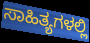
ಸಾಹಿತ್ಯಗಳಲ್ಲಿ